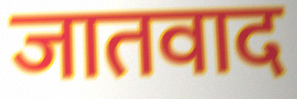
जातवाद